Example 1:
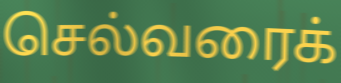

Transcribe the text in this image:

செல்வரைக்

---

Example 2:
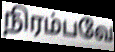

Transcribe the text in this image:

நிரம்பவே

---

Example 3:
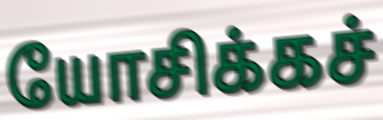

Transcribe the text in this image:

யோசிக்கச்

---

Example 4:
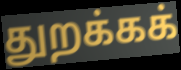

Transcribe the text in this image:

துறக்கக்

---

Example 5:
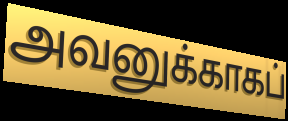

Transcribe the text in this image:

அவனுக்காகப்